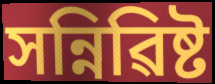
সন্নিৱিষ্ট